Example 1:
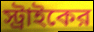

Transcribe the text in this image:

স্ট্রাইকের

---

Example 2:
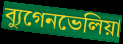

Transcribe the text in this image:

ব্যুগেনভেলিয়া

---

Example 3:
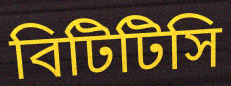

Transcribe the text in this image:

বিটিটিসি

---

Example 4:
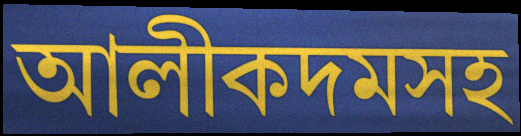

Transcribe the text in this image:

আলীকদমসহ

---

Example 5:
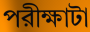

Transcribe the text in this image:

পরীক্ষাটা